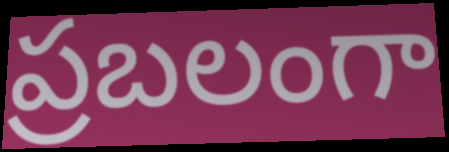
ప్రబలంగా